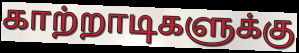
காற்றாடிகளுக்கு